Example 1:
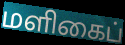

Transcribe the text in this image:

மளிகைப்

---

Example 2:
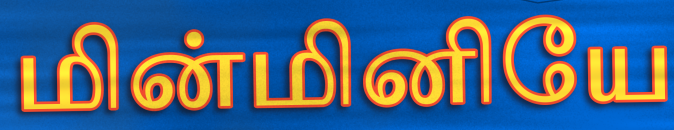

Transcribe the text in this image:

மின்மினியே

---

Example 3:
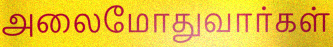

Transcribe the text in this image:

அலைமோதுவார்கள்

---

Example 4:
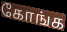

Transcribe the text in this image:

கோங்க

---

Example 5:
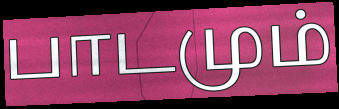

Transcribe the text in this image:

பாடமும்